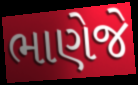
ભાણેજે